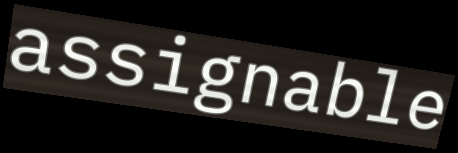
assignable